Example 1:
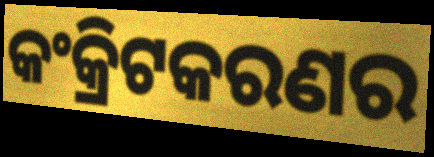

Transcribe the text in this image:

କଂକ୍ରିଟକରଣର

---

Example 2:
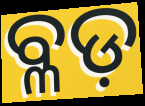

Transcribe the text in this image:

ବ୍ଳଡ଼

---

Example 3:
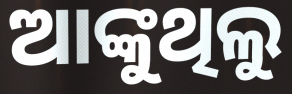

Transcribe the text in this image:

ଆଙ୍କୁଥିଲୁ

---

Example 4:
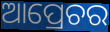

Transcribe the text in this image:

ଆପ୍ରେଚର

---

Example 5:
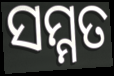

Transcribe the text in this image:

ସମ୍ମତ